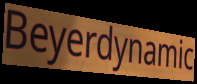
Beyerdynamic